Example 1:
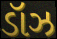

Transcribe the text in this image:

ડૉઝ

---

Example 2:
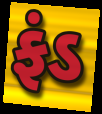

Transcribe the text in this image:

ફંડ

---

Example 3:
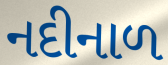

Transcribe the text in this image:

નદીનાળ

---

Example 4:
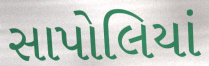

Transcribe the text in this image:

સાપોલિયાં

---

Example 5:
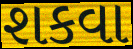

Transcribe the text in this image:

શકવા